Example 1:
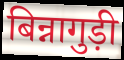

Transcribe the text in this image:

बिन्नागुड़ी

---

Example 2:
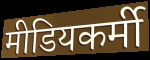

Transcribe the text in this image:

मीडियकर्मी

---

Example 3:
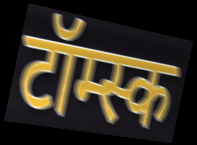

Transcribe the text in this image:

टॉम्स्क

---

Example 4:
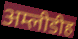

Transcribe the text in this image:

अम्लीडीह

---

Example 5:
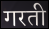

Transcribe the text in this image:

गरती